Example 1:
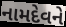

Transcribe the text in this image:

નામદેવને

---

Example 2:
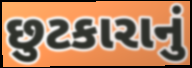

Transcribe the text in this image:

છુટકારાનું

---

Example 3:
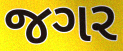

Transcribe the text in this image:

જગર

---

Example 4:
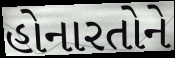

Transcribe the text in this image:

હોનારતોને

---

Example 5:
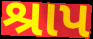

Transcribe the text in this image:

શ્રાપ